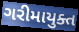
ગરીમાયુક્ત